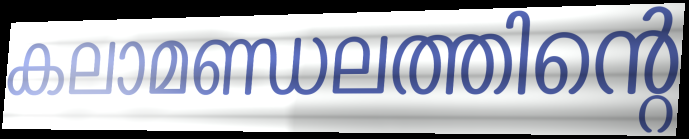
കലാമണ്ഡലത്തിന്റെ